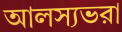
আলস্যভরা